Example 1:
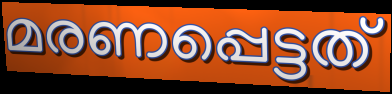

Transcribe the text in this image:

മരണപ്പെട്ടത്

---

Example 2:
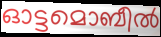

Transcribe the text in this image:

ഓട്ടമൊബീൽ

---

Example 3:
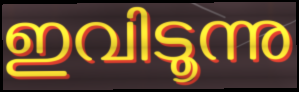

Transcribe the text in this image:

ഇവിടൂന്നു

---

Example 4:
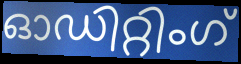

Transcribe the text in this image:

ഓഡിറ്റിംഗ്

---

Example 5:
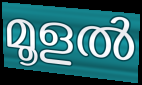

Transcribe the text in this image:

മൂളൽ